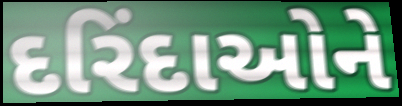
દરિંદાઓને